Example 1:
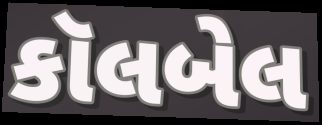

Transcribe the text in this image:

કૉલબેલ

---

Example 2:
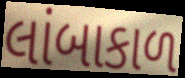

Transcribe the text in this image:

લાંબાકાળ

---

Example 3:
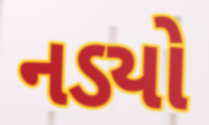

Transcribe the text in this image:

નડ્યો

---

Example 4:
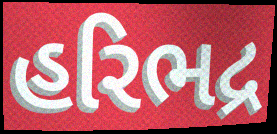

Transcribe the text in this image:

હરિભદ્ર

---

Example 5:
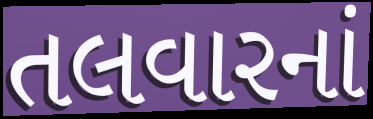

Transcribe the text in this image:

તલવારનાં